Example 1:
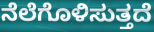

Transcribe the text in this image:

ನೆಲೆಗೊಳಿಸುತ್ತದೆ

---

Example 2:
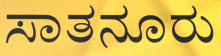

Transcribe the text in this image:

ಸಾತನೂರು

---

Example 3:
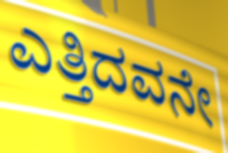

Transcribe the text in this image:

ಎತ್ತಿದವನೇ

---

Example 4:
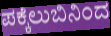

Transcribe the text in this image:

ಪಕ್ಕೆಲುಬಿನಿಂದ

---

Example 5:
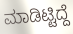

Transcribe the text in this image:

ಮಾಡಿಟ್ಟಿದ್ದೆ